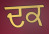
ਦਕ